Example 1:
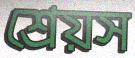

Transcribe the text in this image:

শ্রেয়স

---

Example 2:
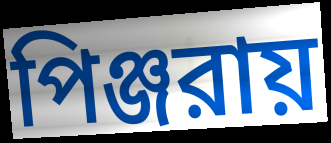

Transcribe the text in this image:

পিঞ্জরায়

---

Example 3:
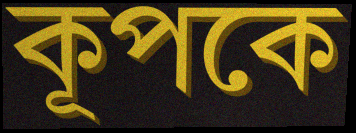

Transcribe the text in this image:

কূপকে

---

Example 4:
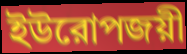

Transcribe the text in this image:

ইউরোপজয়ী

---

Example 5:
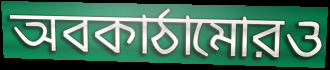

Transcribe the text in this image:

অবকাঠামোরও